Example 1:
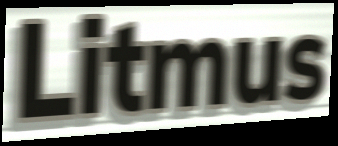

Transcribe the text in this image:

Litmus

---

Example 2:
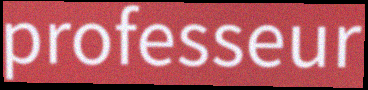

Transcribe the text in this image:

professeur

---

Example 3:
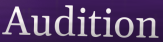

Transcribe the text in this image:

Audition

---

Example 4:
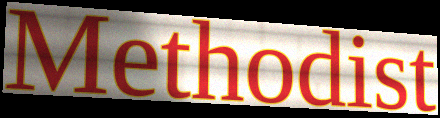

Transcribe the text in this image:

Methodist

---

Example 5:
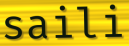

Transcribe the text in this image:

saili